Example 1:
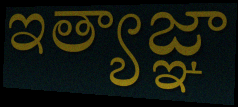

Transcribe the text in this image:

ఇత్యాజ్ఞా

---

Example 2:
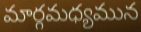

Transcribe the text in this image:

మార్గమధ్యమున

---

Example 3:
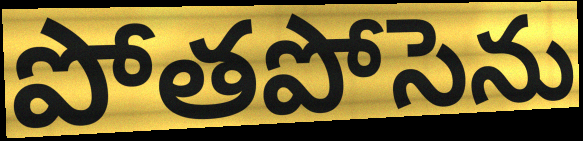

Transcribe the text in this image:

పోతపోసెను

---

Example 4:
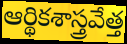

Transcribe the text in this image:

ఆర్థికశాస్త్రవేత్త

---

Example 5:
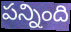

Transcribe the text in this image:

పన్నింది